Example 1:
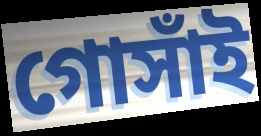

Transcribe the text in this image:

গোসাঁই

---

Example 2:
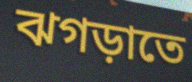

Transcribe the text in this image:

ঝগড়াতে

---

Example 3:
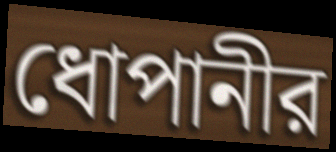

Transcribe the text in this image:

ধোপানীর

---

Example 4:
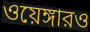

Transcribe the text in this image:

ওয়েঙ্গারও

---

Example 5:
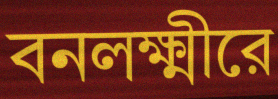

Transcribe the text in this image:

বনলক্ষ্মীরে